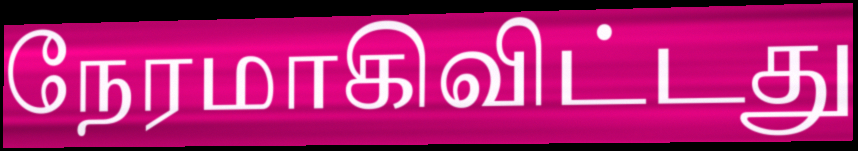
நேரமாகிவிட்டது